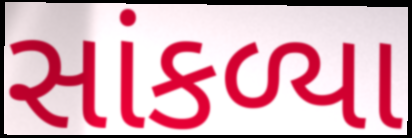
સાંકળ્યા